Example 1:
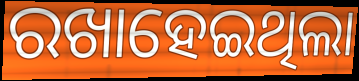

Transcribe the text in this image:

ରଖାହେଇଥିଲା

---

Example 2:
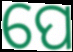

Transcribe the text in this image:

ପେ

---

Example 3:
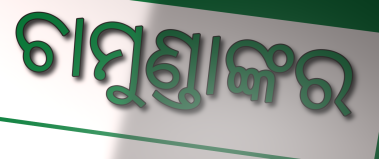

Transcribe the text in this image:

ଚାମୁଣ୍ଡାଙ୍କର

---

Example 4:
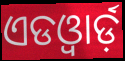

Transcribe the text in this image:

ଏଡଓ୍ବାର୍ଡ଼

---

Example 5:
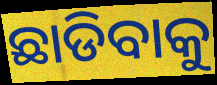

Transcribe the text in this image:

ଛାଡିବାକୁ